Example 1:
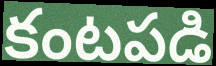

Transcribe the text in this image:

కంటపడి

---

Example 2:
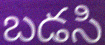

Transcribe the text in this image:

బడసి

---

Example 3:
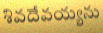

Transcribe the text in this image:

శివదేవయ్యను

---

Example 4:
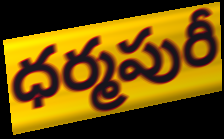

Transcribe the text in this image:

ధర్మపురీ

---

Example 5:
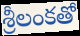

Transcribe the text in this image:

శ్రీలంకతో